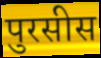
पुरसीस